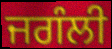
ਜਗੰਲੀ